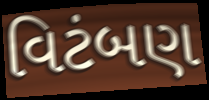
વિટંબણ